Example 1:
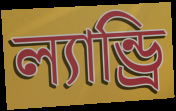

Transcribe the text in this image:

ল্যান্ড্রি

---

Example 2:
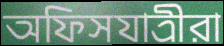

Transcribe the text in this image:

অফিসযাত্রীরা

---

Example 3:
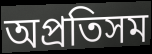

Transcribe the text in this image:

অপ্রতিসম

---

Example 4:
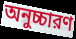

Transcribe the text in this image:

অনুচ্চারণ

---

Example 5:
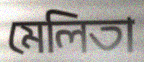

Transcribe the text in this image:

মেলিতা